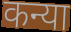
कन्या